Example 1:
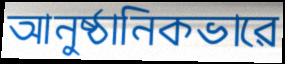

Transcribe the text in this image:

আনুষ্ঠানিকভাৱে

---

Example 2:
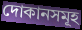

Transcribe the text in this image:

দোকানসমূহ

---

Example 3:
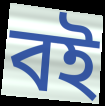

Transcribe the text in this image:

বই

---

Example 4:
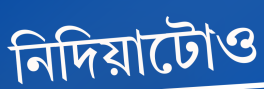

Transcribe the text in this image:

নিদিয়াটোও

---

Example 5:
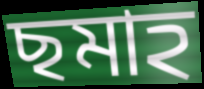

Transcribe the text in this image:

ছমাহ